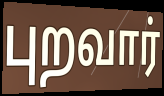
புறவார்